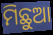
ମିଛୁଆ